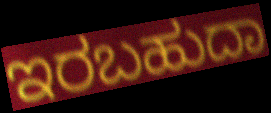
ಇರಬಹುದಾ